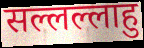
सल्लल्लाहु